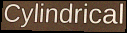
Cylindrical